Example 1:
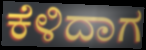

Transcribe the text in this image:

ಕೆಳಿದಾಗ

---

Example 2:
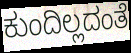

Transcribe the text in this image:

ಕುಂದಿಲ್ಲದಂತೆ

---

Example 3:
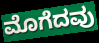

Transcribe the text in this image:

ಮೊಗೆದವು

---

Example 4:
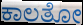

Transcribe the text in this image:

ಕಾಲತೋ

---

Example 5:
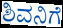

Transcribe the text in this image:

ಶಿವನಿಗೆ